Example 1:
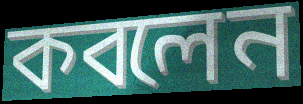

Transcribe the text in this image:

কবলেন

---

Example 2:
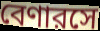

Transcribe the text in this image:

বেণারসে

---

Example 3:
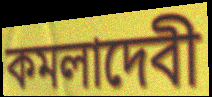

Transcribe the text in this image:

কমলাদেবী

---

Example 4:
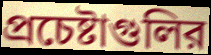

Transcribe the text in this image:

প্রচেষ্টাগুলির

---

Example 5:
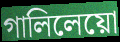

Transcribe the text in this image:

গালিলেয়ো